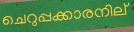
ചെറുപ്പക്കാരനില്